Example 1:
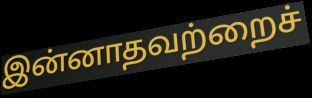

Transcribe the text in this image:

இன்னாதவற்றைச்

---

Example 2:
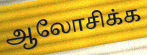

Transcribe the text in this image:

ஆலோசிக்க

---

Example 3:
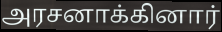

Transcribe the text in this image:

அரசனாக்கினார்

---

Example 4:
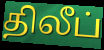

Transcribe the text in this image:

திலீப்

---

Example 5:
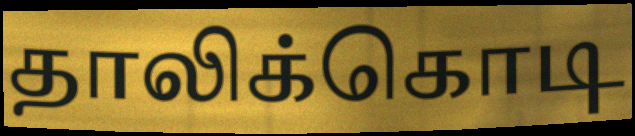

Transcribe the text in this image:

தாலிக்கொடி